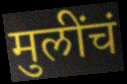
मुलींचं